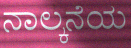
ನಾಲ್ಕನೆಯ